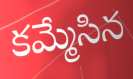
కమ్మేసిన